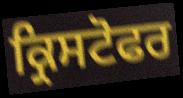
ਕ੍ਰਿਸਟੋਫਰ